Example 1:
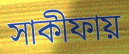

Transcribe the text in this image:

সাকীফায়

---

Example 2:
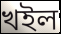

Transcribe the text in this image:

খইল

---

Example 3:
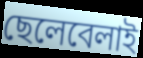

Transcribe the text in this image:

ছেলেবেলাই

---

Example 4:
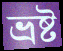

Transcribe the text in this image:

ভ্রষ্ট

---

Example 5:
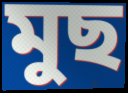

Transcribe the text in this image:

মুছ